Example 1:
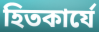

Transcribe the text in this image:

হিতকার্যে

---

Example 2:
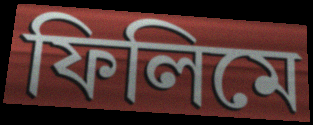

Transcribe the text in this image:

ফিলিমে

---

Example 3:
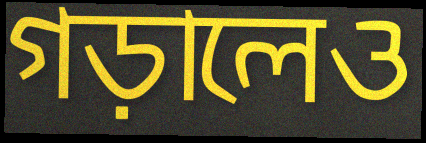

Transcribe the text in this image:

গড়ালেও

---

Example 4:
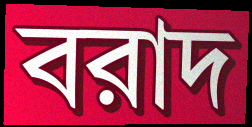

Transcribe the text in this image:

বরাদ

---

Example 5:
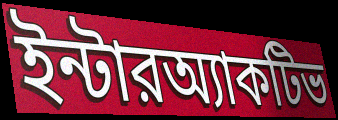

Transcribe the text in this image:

ইন্টারঅ্যাকটিভ